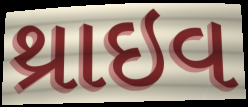
થ્રાઇવ